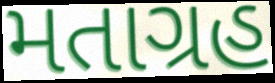
મતાગ્રહ